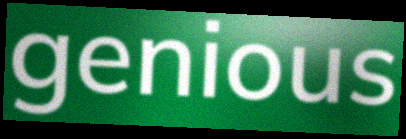
genious